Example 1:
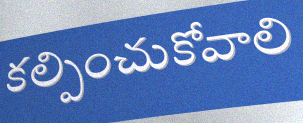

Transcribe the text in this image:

కల్పించుకోవాలి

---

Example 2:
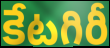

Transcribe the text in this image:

కేటగిరీ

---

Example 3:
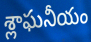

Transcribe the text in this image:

శ్లాఘనీయం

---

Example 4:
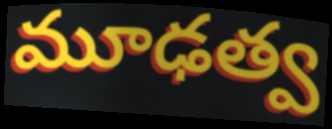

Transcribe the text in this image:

మూఢత్వ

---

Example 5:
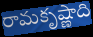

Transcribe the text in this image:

రామకృష్ణాది